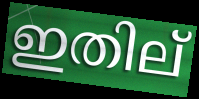
ഇതില്